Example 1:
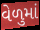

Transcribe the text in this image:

વેળુમાં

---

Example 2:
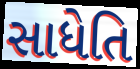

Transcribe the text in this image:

સાધેતિ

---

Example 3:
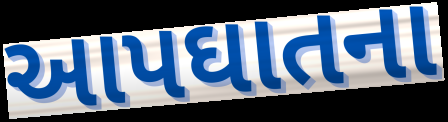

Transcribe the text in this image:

આપઘાતના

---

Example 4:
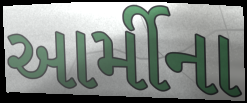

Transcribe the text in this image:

આર્મીના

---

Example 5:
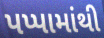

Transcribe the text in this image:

પપ્પામાંથી